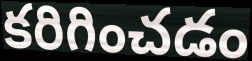
కరిగించడం